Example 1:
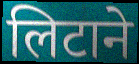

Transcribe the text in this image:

लिटाने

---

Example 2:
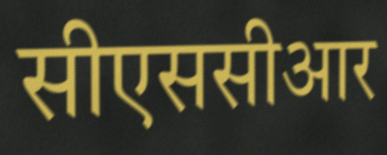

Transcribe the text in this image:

सीएससीआर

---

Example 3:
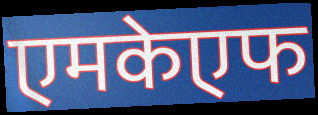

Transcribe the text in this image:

एमकेएफ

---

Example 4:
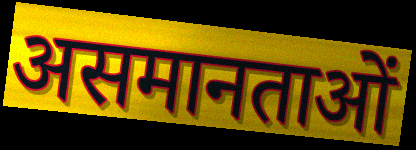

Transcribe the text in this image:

असमानताओं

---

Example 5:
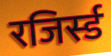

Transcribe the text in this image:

रजिर्स्ड